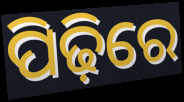
ପିଢ଼ିରେ